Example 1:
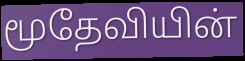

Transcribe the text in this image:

மூதேவியின்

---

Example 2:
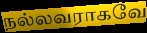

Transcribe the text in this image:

நல்லவராகவே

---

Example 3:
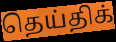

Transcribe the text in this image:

தெய்திக்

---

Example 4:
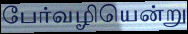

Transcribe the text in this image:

பேர்வழியென்று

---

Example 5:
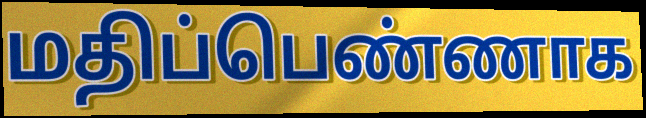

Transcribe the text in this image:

மதிப்பெண்ணாக